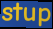
stup